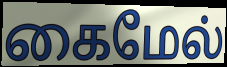
கைமேல்